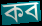
কব